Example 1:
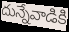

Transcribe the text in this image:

దున్నేవాడికి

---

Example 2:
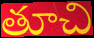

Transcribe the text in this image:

తూచి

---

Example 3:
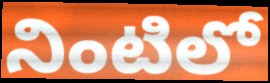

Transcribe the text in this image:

నింటిలో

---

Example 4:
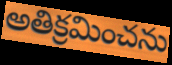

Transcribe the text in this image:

అతిక్రమించను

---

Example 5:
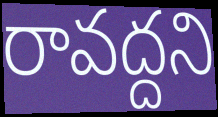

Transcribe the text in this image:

రావద్దని